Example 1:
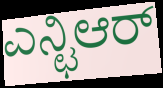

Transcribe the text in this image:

ಎನ್ಟಿಆರ್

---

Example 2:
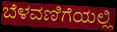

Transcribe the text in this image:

ಬೆಳವಣಿಗೆಯಲ್ಲಿ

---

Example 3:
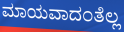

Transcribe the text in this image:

ಮಾಯವಾದಂತೆಲ್ಲ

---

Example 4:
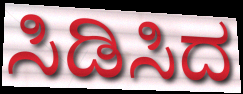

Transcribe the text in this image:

ಸಿಡಿಸಿದ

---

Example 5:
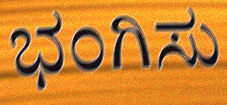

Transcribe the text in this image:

ಭಂಗಿಸು